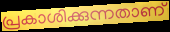
പ്രകാശിക്കുന്നതാണ്